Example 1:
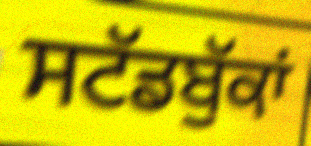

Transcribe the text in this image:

ਸਟੱਡਬੁੱਕਾਂ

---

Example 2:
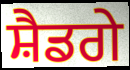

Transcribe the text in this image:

ਸ਼ੈਡਗੇ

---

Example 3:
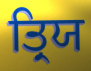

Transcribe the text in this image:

ਤ੍ਰਿਯ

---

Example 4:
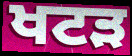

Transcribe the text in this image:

ਖਟੜ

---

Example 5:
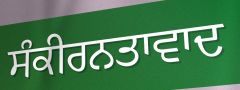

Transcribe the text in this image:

ਸੰਕੀਰਨਤਾਵਾਦ